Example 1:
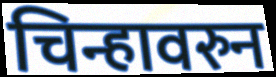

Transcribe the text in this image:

चिन्हावरुन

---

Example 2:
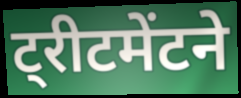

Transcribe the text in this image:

ट्रीटमेंटने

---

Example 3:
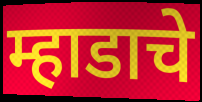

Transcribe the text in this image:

म्हाडाचे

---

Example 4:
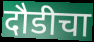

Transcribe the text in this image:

दौडीचा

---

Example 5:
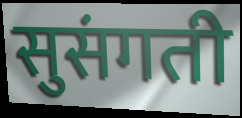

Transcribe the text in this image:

सुसंगती